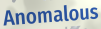
Anomalous